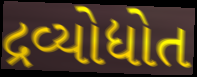
દ્રવ્યોદ્યોત